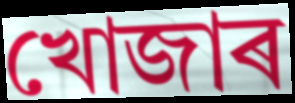
খোজাৰ